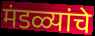
मंडळ्यांचे